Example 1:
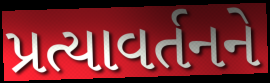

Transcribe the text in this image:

પ્રત્યાવર્તનને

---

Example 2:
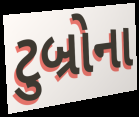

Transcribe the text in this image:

ટુબ્રોના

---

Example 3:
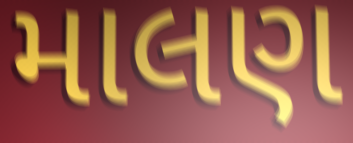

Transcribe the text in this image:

માલણ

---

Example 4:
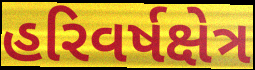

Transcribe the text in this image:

હરિવર્ષક્ષેત્ર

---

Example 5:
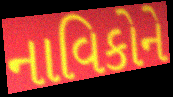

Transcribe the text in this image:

નાવિકોને